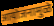
आयोजनामुळे